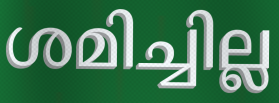
ശമിച്ചില്ല